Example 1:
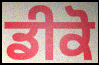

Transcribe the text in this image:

ਡੀਕੋ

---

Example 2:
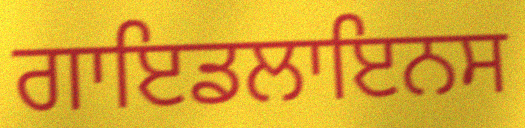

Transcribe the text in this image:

ਗਾਇਡਲਾਇਨਸ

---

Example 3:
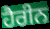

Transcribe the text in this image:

ਹੈਰੀਨ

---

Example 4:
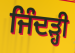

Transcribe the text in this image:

ਜਿੰਦੜ੍ਹੀ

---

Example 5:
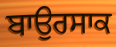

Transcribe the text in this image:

ਬਾਉਰਸਾਕ